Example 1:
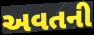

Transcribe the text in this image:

અવતની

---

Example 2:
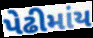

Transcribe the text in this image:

પેઢીમાંય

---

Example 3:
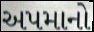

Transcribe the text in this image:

અપમાનો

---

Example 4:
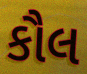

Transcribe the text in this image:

કૌલ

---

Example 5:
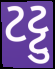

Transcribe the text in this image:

ટટ્ટુ